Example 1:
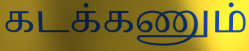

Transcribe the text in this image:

கடக்கணும்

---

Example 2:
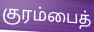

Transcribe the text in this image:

குரம்பைத்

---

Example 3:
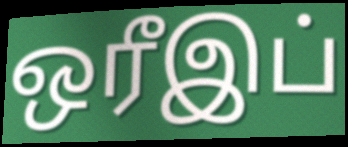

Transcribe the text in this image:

ஒரீஇப்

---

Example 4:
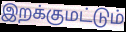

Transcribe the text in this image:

இறக்குமட்டும்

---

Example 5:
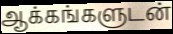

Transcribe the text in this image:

ஆக்கங்களுடன்